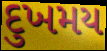
દુખમય